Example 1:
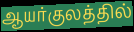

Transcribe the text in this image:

ஆயர்குலத்தில்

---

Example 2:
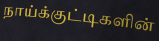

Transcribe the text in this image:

நாய்க்குட்டிகளின்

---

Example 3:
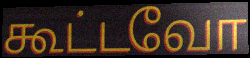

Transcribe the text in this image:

கூட்டவோ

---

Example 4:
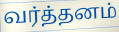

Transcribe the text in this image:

வர்த்தனம்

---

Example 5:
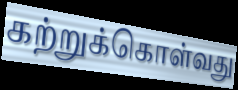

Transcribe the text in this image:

கற்றுக்கொள்வது